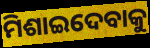
ମିଶାଇଦେବାକୁ